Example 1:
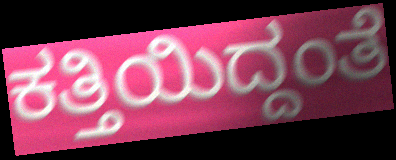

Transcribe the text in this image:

ಕತ್ತಿಯಿದ್ದಂತೆ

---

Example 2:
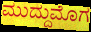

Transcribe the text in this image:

ಮುದ್ದುಮೊಗ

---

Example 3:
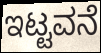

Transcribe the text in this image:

ಇಟ್ಟವನೆ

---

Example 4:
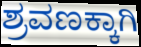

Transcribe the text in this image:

ಶ್ರವಣಕ್ಕಾಗಿ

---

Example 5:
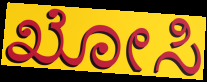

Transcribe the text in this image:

ಖೋಸಿ